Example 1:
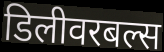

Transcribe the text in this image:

डिलीवरबल्स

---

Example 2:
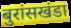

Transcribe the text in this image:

बुरांसखंडा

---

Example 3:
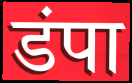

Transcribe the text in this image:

डंपा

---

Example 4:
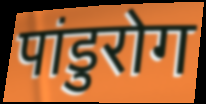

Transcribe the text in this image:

पांडुरोग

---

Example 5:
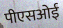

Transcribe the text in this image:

पीएसओई